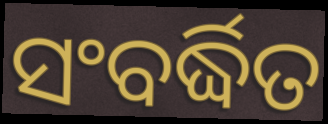
ସଂବର୍ଦ୍ଧିତ